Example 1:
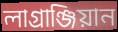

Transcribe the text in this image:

লাগ্ৰাঞ্জিয়ান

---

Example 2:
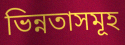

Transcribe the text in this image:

ভিন্নতাসমূহ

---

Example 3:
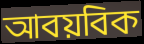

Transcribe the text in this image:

আবয়বিক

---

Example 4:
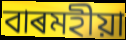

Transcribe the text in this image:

বাৰমহীয়া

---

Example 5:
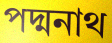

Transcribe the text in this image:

পদ্মনাথ